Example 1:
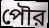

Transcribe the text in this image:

পৌর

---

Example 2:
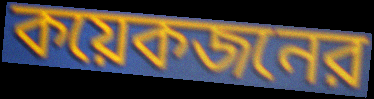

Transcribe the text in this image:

কয়েকজনের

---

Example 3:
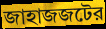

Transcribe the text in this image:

জাহাজজটের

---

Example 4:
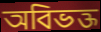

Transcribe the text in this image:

অবিভক্ত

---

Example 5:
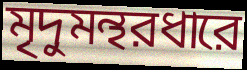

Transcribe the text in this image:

মৃদুমন্থরধারে